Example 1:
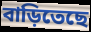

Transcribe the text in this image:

বাড়িতেছে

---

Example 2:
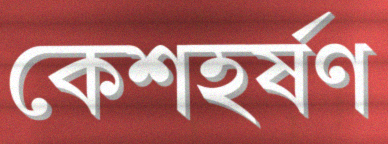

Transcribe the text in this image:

কেশহর্ষণ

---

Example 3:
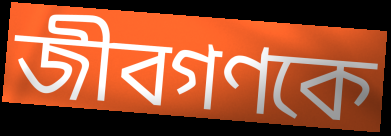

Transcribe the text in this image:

জীবগণকে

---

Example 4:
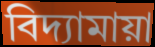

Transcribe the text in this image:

বিদ্যামায়া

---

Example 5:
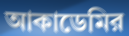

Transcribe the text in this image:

আকাডেমির